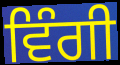
ਵਿੰਗੀ